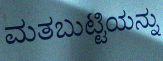
ಮತಬುಟ್ಟಿಯನ್ನು